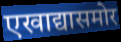
एखाद्यासमोर